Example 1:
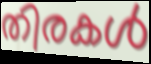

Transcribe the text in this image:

തിരകൾ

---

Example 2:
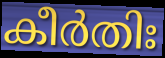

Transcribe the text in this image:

കീർതിഃ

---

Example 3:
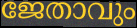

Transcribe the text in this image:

ജേതാവും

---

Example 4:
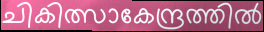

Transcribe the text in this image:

ചികിത്സാകേന്ദ്രത്തിൽ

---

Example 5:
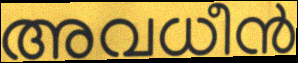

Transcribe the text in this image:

അവധീൻ